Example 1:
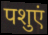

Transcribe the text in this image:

पशुएं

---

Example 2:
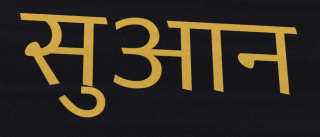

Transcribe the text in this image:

सुआन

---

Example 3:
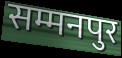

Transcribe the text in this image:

सम्मनपुर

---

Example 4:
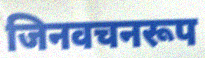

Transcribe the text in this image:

जिनवचनरूप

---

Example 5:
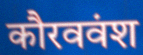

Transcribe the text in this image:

कौरववंश